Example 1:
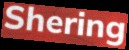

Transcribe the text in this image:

Shering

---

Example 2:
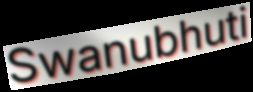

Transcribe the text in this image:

Swanubhuti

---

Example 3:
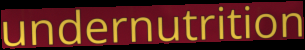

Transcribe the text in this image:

undernutrition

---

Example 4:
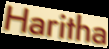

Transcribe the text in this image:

Haritha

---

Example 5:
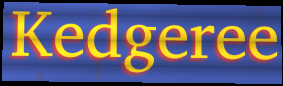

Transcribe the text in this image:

Kedgeree